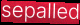
sepalled